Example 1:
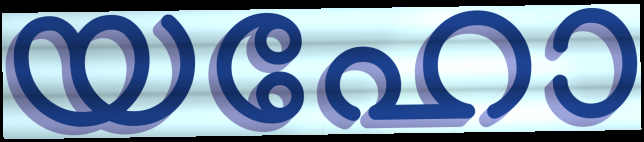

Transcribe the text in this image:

യഹോ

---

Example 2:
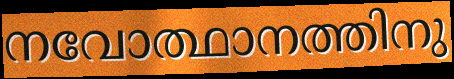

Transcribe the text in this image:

നവോത്ഥാനത്തിനു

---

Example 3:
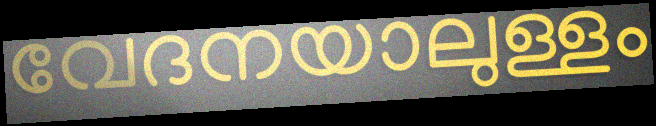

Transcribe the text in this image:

വേദനയാലുള്ളം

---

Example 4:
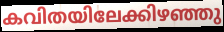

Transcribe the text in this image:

കവിതയിലേക്കിഴഞ്ഞു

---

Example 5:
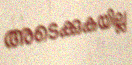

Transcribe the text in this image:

അടെക്കുകയില്ല